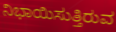
ನಿಭಾಯಿಸುತ್ತಿರುವ